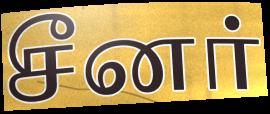
சீனர்